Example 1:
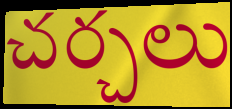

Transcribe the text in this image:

చర్చలు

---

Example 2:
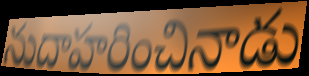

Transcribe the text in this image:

నుదాహరించినాడు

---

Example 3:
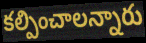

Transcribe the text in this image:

కల్పించాలన్నారు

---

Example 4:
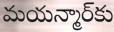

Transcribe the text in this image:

మయన్మార్‌కు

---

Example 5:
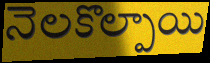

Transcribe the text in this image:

నెలకొల్పాయి